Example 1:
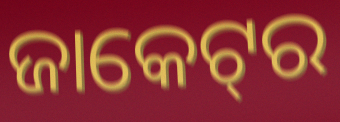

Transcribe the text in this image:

ଜାକେଟ୍‌ର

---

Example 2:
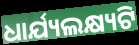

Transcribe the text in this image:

ଧାର୍ଯ୍ୟଲକ୍ଷ୍ୟଟି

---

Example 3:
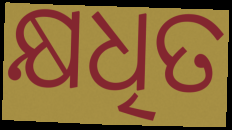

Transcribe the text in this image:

କ୍ଷଧିତ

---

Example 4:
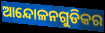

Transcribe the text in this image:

ଆନ୍ଦୋଳନଗୁଡିକର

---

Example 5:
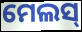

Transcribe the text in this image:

ମେଲସ୍